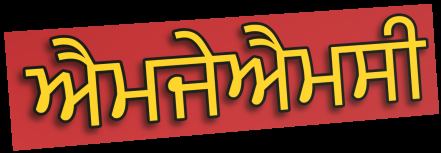
ਐਮਜੇਐਮਸੀ